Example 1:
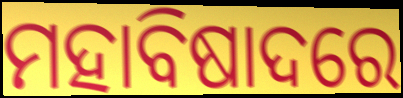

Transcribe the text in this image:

ମହାବିଷାଦରେ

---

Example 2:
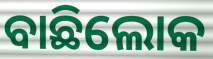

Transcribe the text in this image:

ବାଛିଲୋକ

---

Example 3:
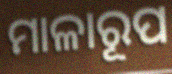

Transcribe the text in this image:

ମାଳାରୂପ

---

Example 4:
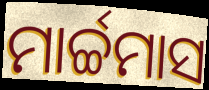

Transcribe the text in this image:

ମାର୍ଚ୍ଚମାସ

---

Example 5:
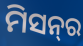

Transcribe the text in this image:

ମିସନ୍‍ର